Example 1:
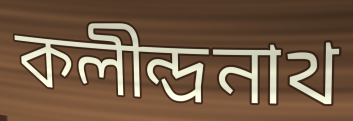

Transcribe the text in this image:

কলীন্দ্রনাথ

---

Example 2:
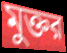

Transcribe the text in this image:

মুক্তর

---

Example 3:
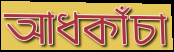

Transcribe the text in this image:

আধকাঁচা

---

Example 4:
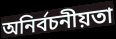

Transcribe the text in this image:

অনির্বচনীয়তা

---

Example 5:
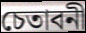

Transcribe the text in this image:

চেতাবনী